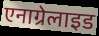
एनाग्रेलाइड